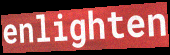
enlighten